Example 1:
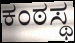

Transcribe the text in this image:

ಕಂಠಸ್ಥ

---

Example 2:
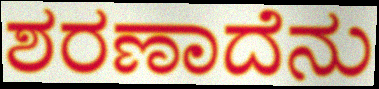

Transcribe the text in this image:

ಶರಣಾದೆನು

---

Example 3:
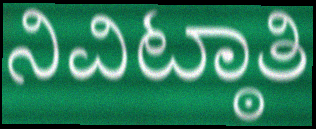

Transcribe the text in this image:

ನಿವಿಟ್ಠಾತಿ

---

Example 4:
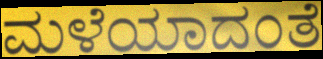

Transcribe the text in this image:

ಮಳೆಯಾದಂತೆ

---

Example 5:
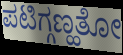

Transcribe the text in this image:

ಪಟಿಗ್ಗಣ್ಹತೋ